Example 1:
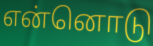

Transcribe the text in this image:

என்னொடு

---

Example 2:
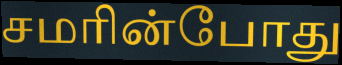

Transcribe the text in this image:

சமரின்போது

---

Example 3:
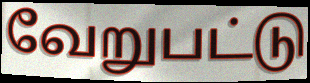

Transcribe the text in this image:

வேறுபட்டு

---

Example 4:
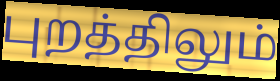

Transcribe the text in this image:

புறத்திலும்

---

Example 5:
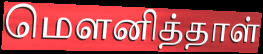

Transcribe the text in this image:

மௌனித்தாள்